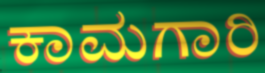
ಕಾಮಗಾರಿ